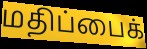
மதிப்பைக்